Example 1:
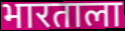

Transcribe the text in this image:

भारताला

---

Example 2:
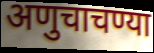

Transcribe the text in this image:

अणुचाचण्या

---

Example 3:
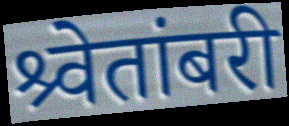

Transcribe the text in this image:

श्र्वेतांबरी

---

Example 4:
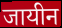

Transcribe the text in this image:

जायीन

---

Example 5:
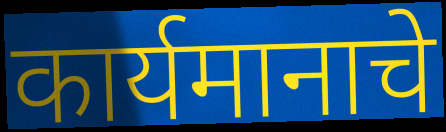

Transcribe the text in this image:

कार्यमानाचे